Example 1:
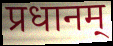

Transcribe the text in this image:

प्रधानम्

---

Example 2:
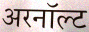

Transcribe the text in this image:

अरनॉल्ट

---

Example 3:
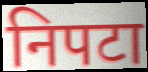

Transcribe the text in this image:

निपटा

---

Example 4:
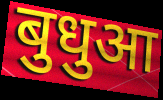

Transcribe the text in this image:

बुधुआ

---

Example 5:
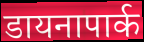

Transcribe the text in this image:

डायनापार्क